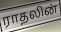
ராதலின்